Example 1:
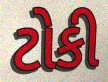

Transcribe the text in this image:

ટોકી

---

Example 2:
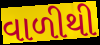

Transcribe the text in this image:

વાળીથી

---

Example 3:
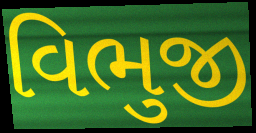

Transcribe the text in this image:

વિભુજી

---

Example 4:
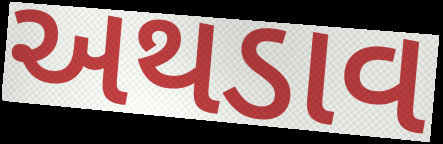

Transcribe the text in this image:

અથડાવ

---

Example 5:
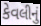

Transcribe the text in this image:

કેવલીનું